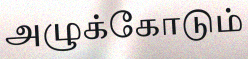
அழுக்கோடும்